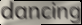
dancing